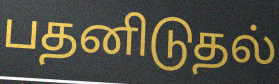
பதனிடுதல்